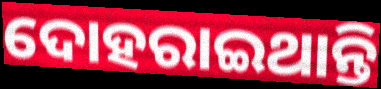
ଦୋହରାଇଥାନ୍ତି